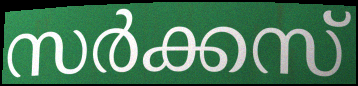
സർക്കസ്